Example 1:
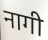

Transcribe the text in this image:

नागी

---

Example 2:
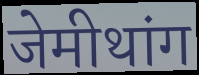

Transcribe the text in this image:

जेमीथांग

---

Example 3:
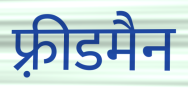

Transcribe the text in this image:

फ़्रीडमैन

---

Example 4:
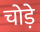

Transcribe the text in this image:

चोड़े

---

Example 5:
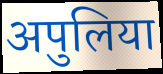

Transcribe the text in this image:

अपुलिया